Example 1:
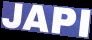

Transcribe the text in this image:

JAPI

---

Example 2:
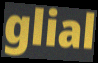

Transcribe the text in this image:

glial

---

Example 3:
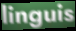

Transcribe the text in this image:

linguis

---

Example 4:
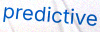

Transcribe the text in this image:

predictive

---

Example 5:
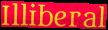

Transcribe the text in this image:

Illiberal